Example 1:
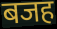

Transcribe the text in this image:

बजह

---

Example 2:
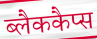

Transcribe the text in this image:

ब्लैककैप्स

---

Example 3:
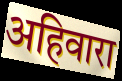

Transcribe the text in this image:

अहिवारा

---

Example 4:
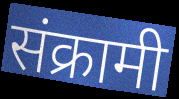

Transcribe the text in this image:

संक्रामी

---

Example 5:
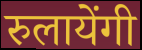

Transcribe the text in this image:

रुलायेंगी